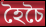
হৈচৈ